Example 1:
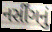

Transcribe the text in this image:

નર્સીંગનું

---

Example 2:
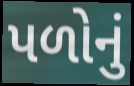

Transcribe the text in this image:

પળોનું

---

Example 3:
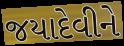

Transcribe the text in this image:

જયાદેવીને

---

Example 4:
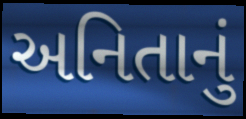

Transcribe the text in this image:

અનિતાનું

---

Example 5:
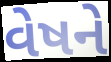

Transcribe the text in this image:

વેષને